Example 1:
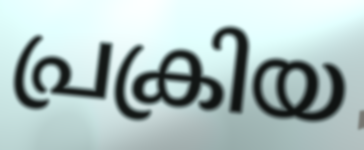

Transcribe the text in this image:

പ്രക്രിയ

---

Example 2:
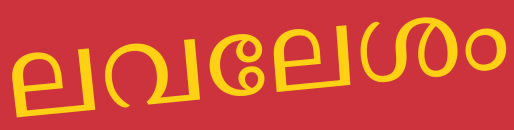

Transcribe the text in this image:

ലവലേശം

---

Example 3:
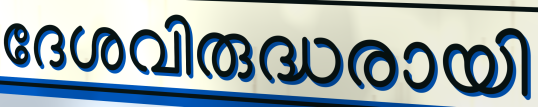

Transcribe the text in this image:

ദേശവിരുദ്ധരായി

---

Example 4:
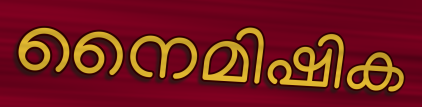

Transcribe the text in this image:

നൈമിഷിക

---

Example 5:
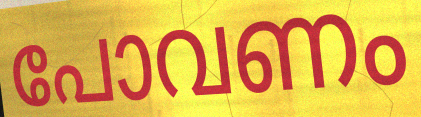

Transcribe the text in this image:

പോവണം